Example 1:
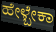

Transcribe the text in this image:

ಹೇಳ್ಬೇಕಾ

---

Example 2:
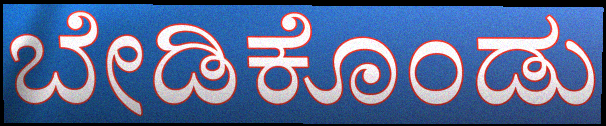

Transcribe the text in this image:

ಬೇಡಿಕೊಂಡು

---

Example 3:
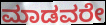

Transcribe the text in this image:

ಮಾಡವರೇ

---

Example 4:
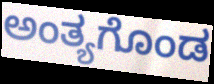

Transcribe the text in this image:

ಅಂತ್ಯಗೊಂಡ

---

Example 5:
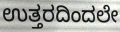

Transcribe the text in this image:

ಉತ್ತರದಿಂದಲೇ